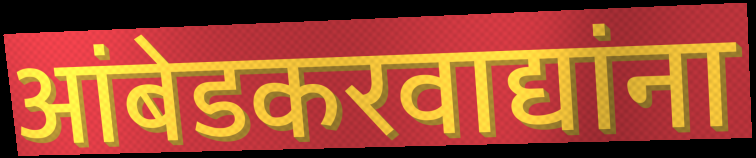
आंबेडकरवाद्यांना